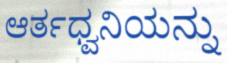
ಆರ್ತಧ್ವನಿಯನ್ನು